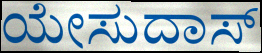
ಯೇಸುದಾಸ್